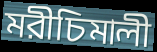
মরীচিমালী